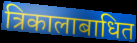
त्रिकालाबाधित